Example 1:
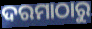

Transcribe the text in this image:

ଦରମାଠାରୁ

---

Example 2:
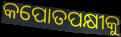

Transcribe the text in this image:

କପୋତପକ୍ଷୀକୁ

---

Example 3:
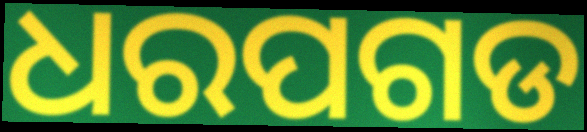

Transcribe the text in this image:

ଧରପଗଡ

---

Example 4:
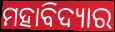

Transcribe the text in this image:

ମହାବିଦ୍ୟାର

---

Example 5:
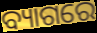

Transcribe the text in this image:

ବ୍ୟାଗରେ